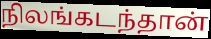
நிலங்கடந்தான்